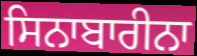
ਸਿਨਾਬਾਰੀਨਾ